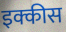
इक्‍कीस